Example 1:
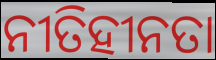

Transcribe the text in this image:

ନୀତିହୀନତା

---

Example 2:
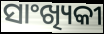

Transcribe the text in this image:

ସାଂଖ୍ୟିକୀ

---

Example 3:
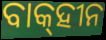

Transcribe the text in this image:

ବାକ୍‌ହୀନ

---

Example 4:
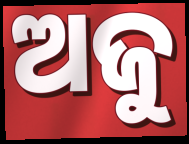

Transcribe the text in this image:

ଅଜୁ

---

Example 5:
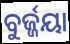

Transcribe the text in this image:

ବୁର୍ଜ୍ଜୟା